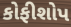
કોફીશોપ